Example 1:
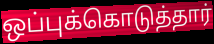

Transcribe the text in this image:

ஒப்புக்கொடுத்தார்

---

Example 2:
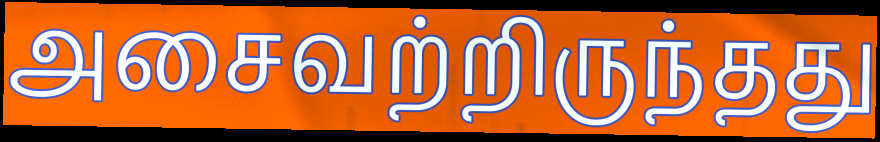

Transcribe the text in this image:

அசைவற்றிருந்தது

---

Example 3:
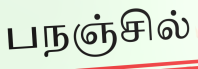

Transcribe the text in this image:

பநஞ்சில்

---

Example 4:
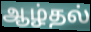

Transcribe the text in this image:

ஆழ்தல்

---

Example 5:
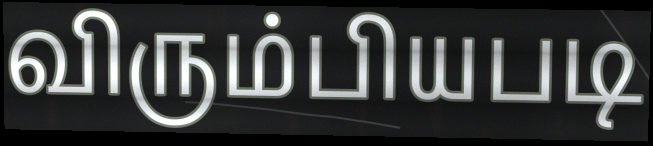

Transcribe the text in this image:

விரும்பியபடி